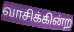
வாசிக்கின்ற